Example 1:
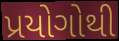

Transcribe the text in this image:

પ્રયોગોથી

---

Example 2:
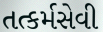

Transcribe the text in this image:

તત્કર્મસેવી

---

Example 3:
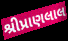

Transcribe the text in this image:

શ્રીપ્રાણલાલ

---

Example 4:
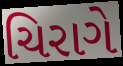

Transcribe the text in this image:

ચિરાગે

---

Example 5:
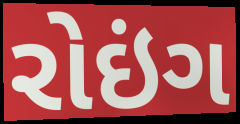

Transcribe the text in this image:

રોઇંગ